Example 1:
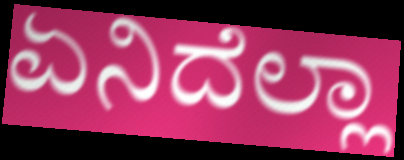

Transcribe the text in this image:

ಏನಿದೆಲ್ಲಾ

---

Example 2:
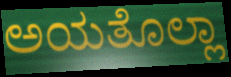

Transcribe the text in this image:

ಅಯತೊಲ್ಲಾ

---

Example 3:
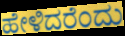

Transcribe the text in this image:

ಹೇಳಿದರೆಂದು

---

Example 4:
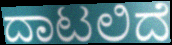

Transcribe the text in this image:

ದಾಟಲಿದೆ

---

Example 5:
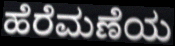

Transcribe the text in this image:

ಹೆರೆಮಣೆಯ